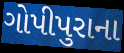
ગોપીપુરાના